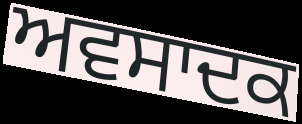
ਅਵਸਾਦਕ